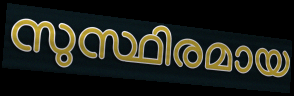
സുസ്ഥിരമായ